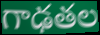
గాఢతల